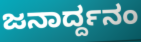
ಜನಾರ್ದ್ದನಂ